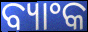
ବ୍ୟାଂକ